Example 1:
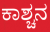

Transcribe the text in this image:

ಕಾಶ್ಚನ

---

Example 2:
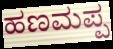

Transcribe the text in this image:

ಹಣಮಪ್ಪ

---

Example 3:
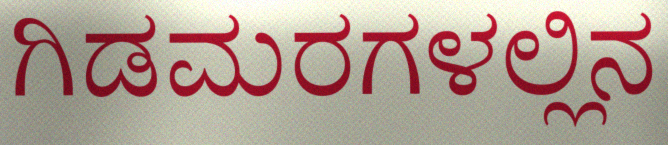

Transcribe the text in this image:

ಗಿಡಮರಗಳಲ್ಲಿನ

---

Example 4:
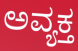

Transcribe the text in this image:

ಅವ್ಯಕ್ತ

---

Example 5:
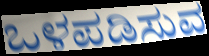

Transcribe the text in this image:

ಒಳಪಡಿಸುವ